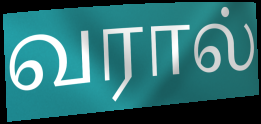
வரால்